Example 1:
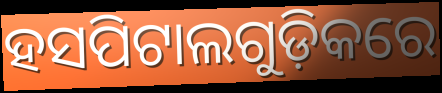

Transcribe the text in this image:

ହସପିଟାଲଗୁଡ଼ିକରେ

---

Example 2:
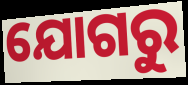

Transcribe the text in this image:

ଯୋଗରୁ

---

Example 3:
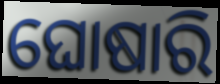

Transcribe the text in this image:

ଘୋଷାରି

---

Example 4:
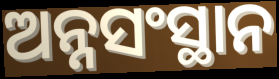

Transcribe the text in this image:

ଅନ୍ନସଂସ୍ଥାନ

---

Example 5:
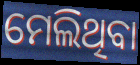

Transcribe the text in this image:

ମେଲିଥିବା